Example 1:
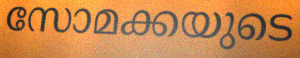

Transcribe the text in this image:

സോമക്കയുടെ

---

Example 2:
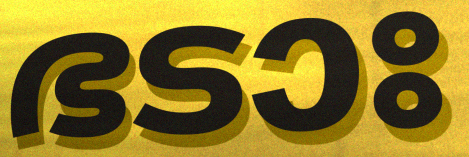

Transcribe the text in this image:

ഭടാഃ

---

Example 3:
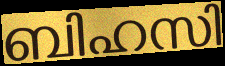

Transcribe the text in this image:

ബിഹസി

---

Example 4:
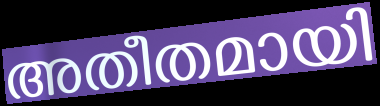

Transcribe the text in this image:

അതീതമായി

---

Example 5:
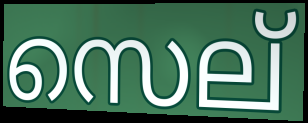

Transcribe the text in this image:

സെല്